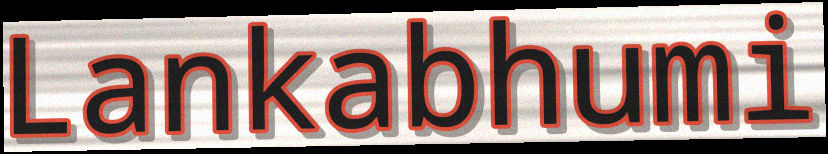
Lankabhumi